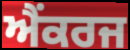
ਐਂਕਰਜ